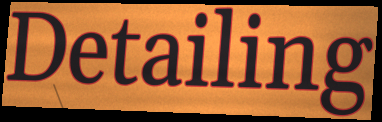
Detailing